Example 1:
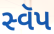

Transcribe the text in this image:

સ્વૅપ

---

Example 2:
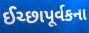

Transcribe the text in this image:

ઈચ્છાપૂર્વકના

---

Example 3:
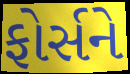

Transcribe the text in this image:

ફોર્સને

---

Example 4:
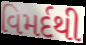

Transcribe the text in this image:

વિમર્દથી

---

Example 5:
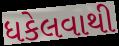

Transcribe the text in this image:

ધકેલવાથી